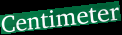
Centimeter